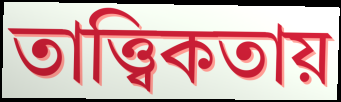
তাত্ত্বিকতায়